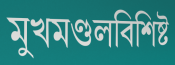
মুখমণ্ডলবিশিষ্ট